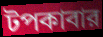
টপকাবার